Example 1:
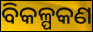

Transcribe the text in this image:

ବିକଳ୍ପକଣ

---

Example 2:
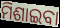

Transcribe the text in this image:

ମିଶାଇବା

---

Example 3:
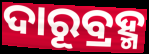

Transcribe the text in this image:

ଦାରୂବ୍ରହ୍ମ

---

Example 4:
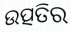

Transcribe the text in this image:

ଉତ୍ପତିର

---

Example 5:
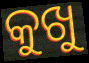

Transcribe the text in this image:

କୁଖୁ